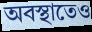
অবস্থাতেও